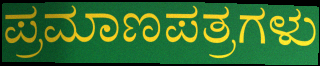
ಪ್ರಮಾಣಪತ್ರಗಳು